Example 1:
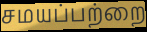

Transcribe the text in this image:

சமயப்பற்றை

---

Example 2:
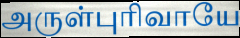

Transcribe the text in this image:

அருள்புரிவாயே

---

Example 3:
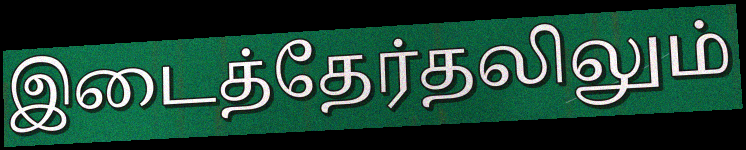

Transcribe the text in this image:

இடைத்தேர்தலிலும்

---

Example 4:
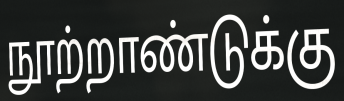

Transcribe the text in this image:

நூற்றாண்டுக்கு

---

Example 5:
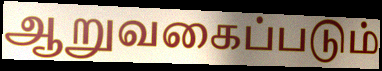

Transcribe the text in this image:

ஆறுவகைப்படும்